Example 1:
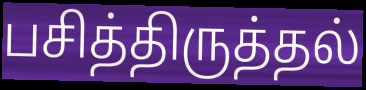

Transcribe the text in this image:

பசித்திருத்தல்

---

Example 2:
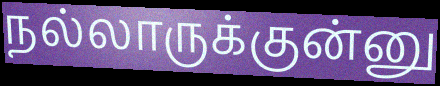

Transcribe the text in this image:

நல்லாருக்குன்னு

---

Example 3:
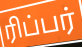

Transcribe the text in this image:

ரிப்பர்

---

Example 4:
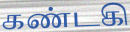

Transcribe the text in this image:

கண்டகி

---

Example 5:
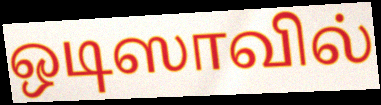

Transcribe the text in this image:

ஒடிஸாவில்